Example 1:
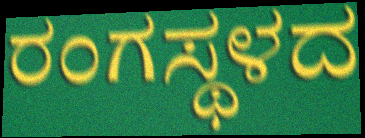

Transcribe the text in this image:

ರಂಗಸ್ಥಳದ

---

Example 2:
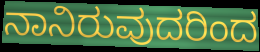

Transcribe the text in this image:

ನಾನಿರುವುದರಿಂದ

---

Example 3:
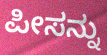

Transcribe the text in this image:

ಪೀಸನ್ನು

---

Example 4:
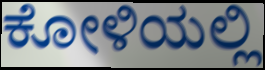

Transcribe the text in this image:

ಕೋಳಿಯಲ್ಲಿ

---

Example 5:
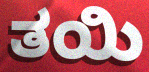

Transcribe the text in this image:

ತಯಿ